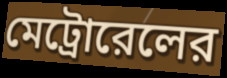
মেট্রোরেলের